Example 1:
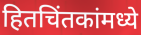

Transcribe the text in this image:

हितचिंतकांमध्ये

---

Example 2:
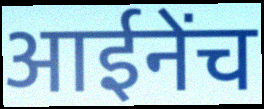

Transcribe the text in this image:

आईनेंच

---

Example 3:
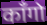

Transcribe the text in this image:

काँगो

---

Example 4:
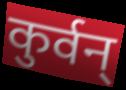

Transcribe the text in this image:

कुर्वन्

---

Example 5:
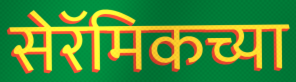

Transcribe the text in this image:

सेरॅमिकच्या